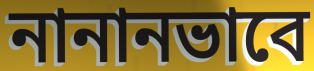
নানানভাবে